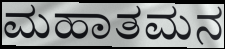
ಮಹಾತಮನ